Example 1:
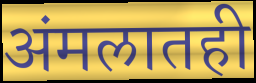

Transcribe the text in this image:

अंमलातही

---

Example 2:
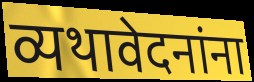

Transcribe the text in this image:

व्यथावेदनांना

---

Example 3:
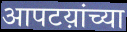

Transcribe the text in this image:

आपटय़ांच्या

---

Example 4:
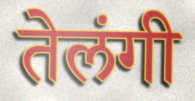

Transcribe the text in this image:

तेलंगी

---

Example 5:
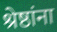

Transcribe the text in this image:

श्रेष्ठांना